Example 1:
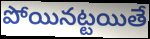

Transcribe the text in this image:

పోయినట్టయితే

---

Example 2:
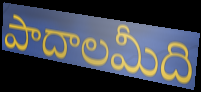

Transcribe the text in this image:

పాదాలమీది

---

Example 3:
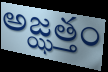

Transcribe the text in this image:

అజ్ఝత్తం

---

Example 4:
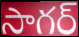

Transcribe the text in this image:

సాగర్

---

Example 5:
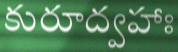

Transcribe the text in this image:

కురూద్వహాః